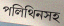
পলিথিনসহ